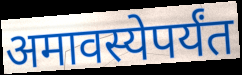
अमावस्येपर्यंत